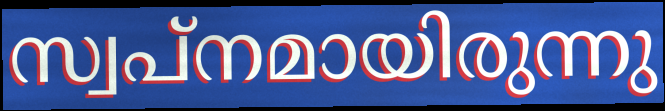
സ്വപ്നമായിരുന്നു